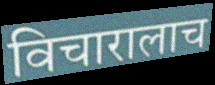
विचारालाच